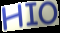
HIO